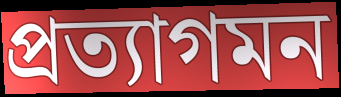
প্রত্যাগমন